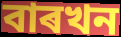
বাৰখন